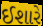
ઈશારે